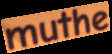
muthe